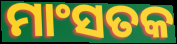
ମାଂସତକ